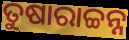
ତୁଷାରାଚ୍ଚନ୍ନ